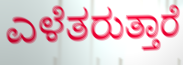
ಎಳೆತರುತ್ತಾರೆ